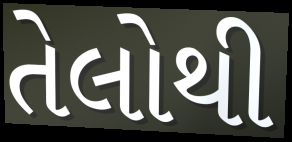
તેલોથી